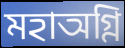
মহাঅগ্নি